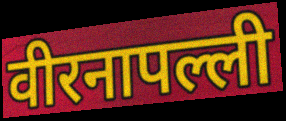
वीरनापल्ली